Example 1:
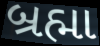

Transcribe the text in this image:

બ્રહ્મા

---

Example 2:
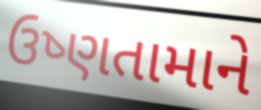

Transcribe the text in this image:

ઉષ્ણતામાને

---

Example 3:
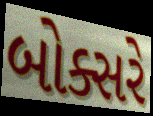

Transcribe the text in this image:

બોક્સરે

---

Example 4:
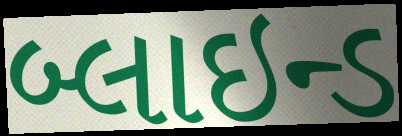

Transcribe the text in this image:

બ્લાઇન્ડ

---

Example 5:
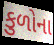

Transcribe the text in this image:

કુળોના